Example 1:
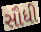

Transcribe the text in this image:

સૌધી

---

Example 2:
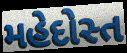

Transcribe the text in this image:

મહેદોસ્ત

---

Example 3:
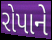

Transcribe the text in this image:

રોપાને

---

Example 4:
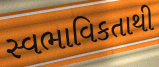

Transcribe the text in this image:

સ્વભાવિકતાથી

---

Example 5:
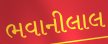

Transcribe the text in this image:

ભવાનીલાલ